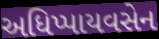
અધિપ્પાયવસેન